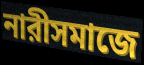
নারীসমাজে